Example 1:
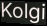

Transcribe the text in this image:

Kolgi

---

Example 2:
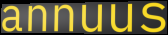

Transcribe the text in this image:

annuus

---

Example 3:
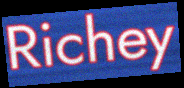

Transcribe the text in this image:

Richey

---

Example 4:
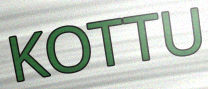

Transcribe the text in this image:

KOTTU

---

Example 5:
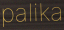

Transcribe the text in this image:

palika